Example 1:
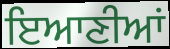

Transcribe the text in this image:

ਇਆਣੀਆਂ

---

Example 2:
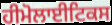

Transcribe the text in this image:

ਹੀਮੋਲਾਈਟਿਕਸ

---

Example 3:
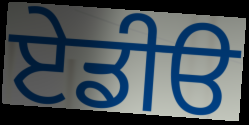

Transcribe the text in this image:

ਏਡੀੳ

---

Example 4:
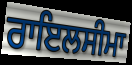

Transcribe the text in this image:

ਰਾਇਲਸੀਮਾ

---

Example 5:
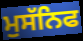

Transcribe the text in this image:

ਮੁਸੱਨਿਫ